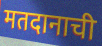
मतदानाची